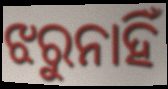
ଝରୁନାହିଁ